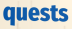
quests